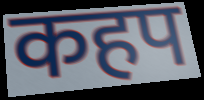
कहप